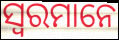
ସ୍ୱରମାନେ